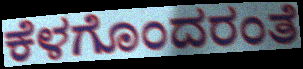
ಕೆಳಗೊಂದರಂತೆ